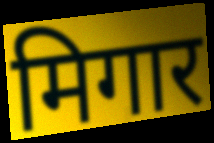
मिगार